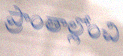
ప్రాంతాల్లోంచి